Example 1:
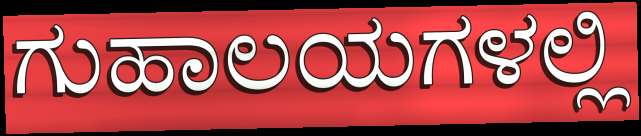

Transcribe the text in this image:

ಗುಹಾಲಯಗಳಲ್ಲಿ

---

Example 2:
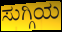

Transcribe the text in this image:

ಸುಗ್ಗಿಯ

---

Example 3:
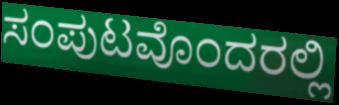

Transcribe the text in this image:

ಸಂಪುಟವೊಂದರಲ್ಲಿ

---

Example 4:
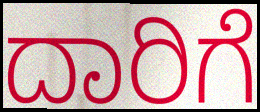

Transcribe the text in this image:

ದಾರಿಗೆ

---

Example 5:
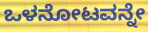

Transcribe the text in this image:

ಒಳನೋಟವನ್ನೇ